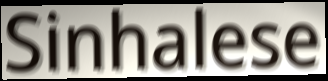
Sinhalese